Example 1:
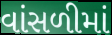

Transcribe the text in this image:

વાંસળીમાં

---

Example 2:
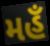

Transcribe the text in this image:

મહઁ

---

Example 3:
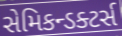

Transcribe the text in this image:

સેમિકન્ડક્ટર્સ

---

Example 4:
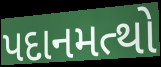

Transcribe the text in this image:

પદાનમત્થો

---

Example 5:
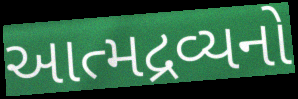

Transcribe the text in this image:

આત્મદ્રવ્યનો